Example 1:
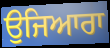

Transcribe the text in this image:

ਉਜਿਆਰਾ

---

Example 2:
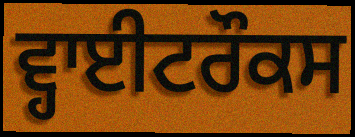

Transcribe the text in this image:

ਵ੍ਹਾਈਟਰੌਕਸ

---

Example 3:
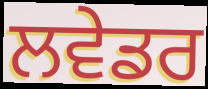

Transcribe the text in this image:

ਲਵੇਡਰ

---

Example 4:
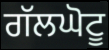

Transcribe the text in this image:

ਗੱਲਘੋਟੂ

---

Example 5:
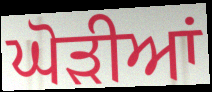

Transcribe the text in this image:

ਘੋੜੀਆਂ